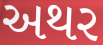
અથર